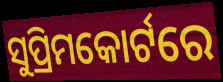
ସୁପ୍ରିମକୋର୍ଟରେ